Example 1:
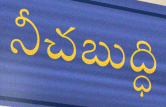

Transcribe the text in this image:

నీచబుద్ధి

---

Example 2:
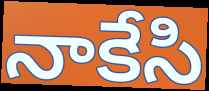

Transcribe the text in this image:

నాకేసి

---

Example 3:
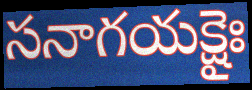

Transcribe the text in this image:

సనాగయక్షైః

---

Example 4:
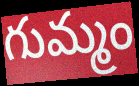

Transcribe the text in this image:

గుమ్మం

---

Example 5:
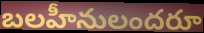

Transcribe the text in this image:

బలహీనులందరూ